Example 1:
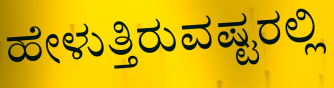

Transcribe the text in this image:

ಹೇಳುತ್ತಿರುವಷ್ಟರಲ್ಲಿ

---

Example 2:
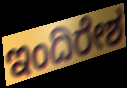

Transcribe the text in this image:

ಇಂದಿರೇಶ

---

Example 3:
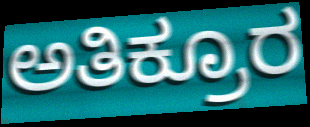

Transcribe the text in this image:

ಅತಿಕ್ರೂರ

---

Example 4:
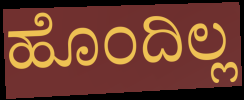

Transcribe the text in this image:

ಹೊಂದಿಲ್ಲ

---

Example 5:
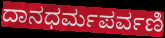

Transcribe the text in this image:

ದಾನಧರ್ಮಪರ್ವಣಿ